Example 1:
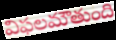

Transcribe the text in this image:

విఫలమౌతుంది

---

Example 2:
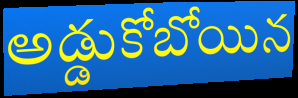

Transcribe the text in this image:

అడ్డుకోబోయిన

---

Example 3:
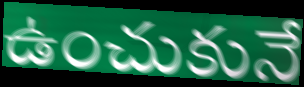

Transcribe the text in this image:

ఉంచుకునే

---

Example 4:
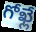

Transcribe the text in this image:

గోఖ్లే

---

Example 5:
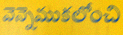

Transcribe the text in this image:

వెన్నెముకలోంచి